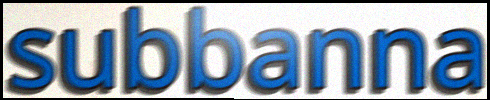
subbanna